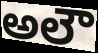
అలౌ